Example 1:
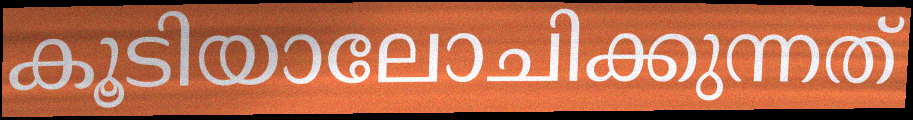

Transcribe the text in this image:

കൂടിയാലോചിക്കുന്നത്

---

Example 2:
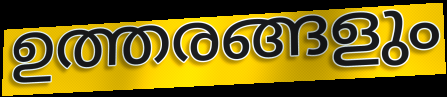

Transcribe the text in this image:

ഉത്തരങ്ങളും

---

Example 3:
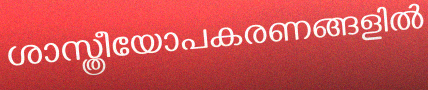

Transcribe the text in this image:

ശാസ്ത്രീയോപകരണങ്ങളിൽ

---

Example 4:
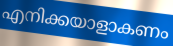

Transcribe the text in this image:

എനിക്കയാളാകണം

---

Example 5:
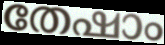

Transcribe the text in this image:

തേഷാം